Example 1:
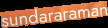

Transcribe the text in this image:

sundararaman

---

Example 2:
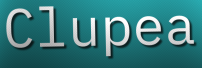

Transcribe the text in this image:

Clupea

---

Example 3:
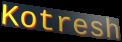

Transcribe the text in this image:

Kotresh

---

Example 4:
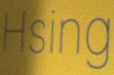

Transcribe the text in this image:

Hsing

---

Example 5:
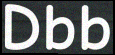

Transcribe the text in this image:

Dbb